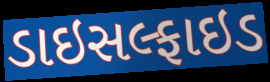
ડાઇસલ્ફાઇડ